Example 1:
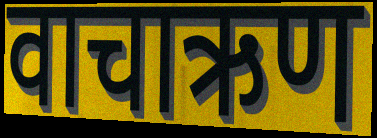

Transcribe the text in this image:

वाचाऋण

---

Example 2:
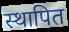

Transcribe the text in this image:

स्थापित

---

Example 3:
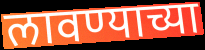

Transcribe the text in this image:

लावण्याच्या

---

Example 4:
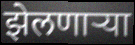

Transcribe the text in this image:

झेलणाऱ्या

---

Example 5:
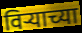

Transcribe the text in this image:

विर्‍याच्या